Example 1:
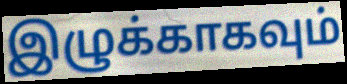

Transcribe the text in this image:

இழுக்காகவும்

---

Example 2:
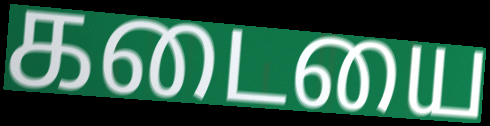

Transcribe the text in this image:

கடையை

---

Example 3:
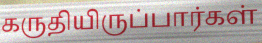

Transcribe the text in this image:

கருதியிருப்பார்கள்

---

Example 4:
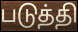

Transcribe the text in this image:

படுத்தி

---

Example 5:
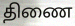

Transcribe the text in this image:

திணை